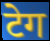
टेग